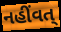
નહીંવત્